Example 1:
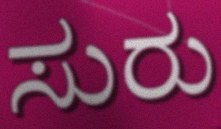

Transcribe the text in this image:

ಸುರು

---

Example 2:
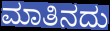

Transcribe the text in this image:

ಮಾತಿನದು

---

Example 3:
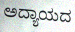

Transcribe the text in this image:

ಅದ್ಯಾಯದ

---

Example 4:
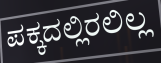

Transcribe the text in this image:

ಪಕ್ಕದಲ್ಲಿರಲಿಲ್ಲ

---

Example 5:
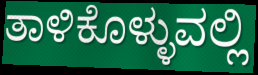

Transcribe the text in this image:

ತಾಳಿಕೊಳ್ಳುವಲ್ಲಿ